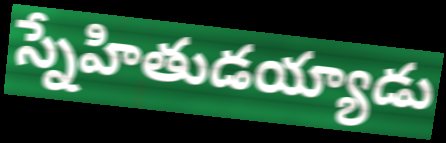
స్నేహితుడయ్యాడు